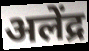
अलेंद्र